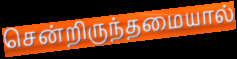
சென்றிருந்தமையால்